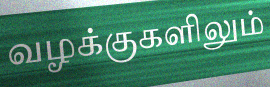
வழக்குகளிலும்